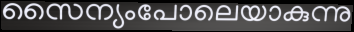
സൈന്യംപോലെയാകുന്നു